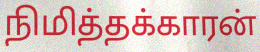
நிமித்தக்காரன்